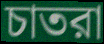
চাতরা